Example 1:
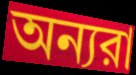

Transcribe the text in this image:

অন্যরা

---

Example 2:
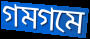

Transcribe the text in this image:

গমগমে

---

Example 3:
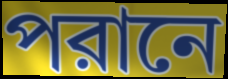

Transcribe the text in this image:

পরানে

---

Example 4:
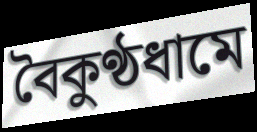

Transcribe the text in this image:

বৈকুণ্ঠধামে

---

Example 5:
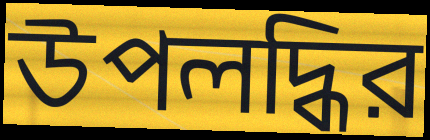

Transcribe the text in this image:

উপলদ্ধির